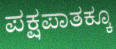
ಪಕ್ಷಪಾತಕ್ಕೂ